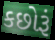
કછોરૂં